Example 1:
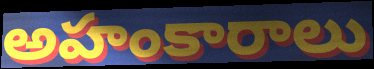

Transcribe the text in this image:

అహంకారాలు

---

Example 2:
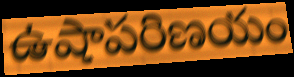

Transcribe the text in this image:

ఉషాపరిణయం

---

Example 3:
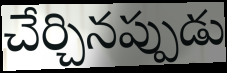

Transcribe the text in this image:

చేర్చినప్పుడు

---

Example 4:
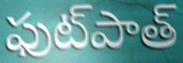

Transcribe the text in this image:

ఫుట్‌పాత్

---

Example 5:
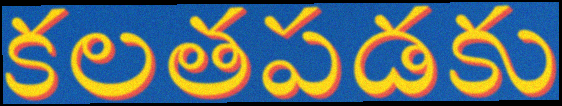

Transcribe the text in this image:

కలతపడకు